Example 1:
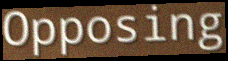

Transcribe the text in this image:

Opposing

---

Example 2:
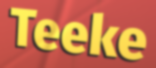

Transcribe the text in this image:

Teeke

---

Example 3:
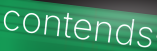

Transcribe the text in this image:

contends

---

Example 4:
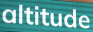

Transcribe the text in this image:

altitude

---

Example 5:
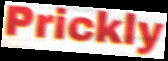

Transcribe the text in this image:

Prickly